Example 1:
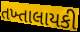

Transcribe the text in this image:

તખ્તાલાયકી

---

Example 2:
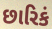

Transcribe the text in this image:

છારિકં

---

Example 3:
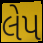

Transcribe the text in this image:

લેપ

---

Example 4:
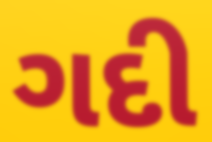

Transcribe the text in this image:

ગદી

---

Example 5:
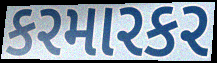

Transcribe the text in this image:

કરમારકર